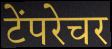
टेंपरेचर